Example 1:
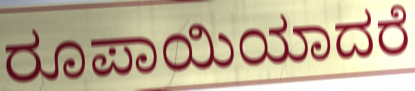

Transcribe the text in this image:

ರೂಪಾಯಿಯಾದರೆ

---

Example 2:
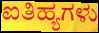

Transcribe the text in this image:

ಐತಿಹ್ಯಗಳು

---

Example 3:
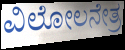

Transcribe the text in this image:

ವಿಲೋಲನೇತ್ರ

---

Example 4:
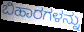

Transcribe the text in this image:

ಬಿಹಾರಗಳನ್ನು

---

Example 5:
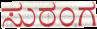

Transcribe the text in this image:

ಸುರಂಗ